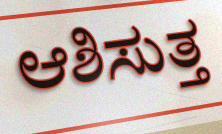
ಆಶಿಸುತ್ತ